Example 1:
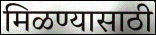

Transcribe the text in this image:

मिळण्‍यासाठी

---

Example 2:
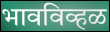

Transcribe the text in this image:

भावविव्हळ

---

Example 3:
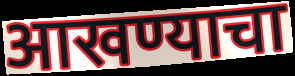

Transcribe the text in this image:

आखण्याचा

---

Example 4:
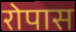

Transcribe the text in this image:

रोपास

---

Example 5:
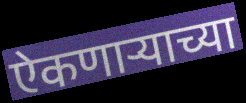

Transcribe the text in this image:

ऐकणाऱ्याच्या